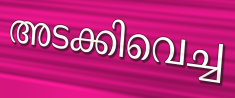
അടക്കിവെച്ച